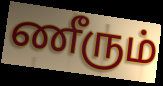
ணீரும்